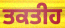
ਤਕਤੀਹ